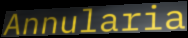
Annularia